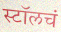
स्टॉलचं